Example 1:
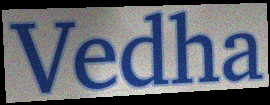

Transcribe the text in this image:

Vedha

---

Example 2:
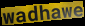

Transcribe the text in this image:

wadhawe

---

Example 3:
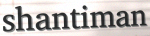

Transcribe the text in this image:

shantiman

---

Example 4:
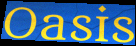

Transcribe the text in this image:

Oasis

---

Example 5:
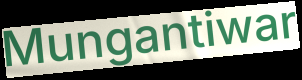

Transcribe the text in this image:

Mungantiwar